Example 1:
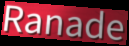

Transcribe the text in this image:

Ranade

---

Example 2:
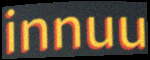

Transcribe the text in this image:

innuu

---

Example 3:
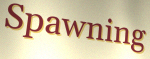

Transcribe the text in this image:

Spawning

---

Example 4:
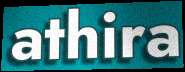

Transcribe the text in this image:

athira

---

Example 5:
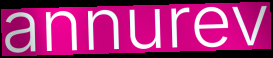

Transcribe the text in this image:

annurev